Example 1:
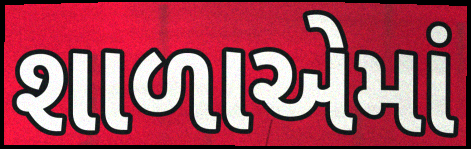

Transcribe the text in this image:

શાળાએમાં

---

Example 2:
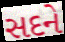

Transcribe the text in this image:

સદને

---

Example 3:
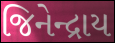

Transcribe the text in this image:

જિનેન્દ્રાય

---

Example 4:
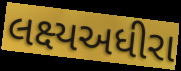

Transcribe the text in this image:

લક્ષ્યઅધીરા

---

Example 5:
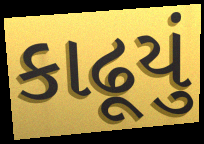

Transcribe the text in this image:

કાઢૂયું